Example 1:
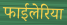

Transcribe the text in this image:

फाईलेरिया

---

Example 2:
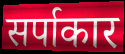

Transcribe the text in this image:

सर्पाकार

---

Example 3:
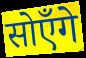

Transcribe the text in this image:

सोएँगे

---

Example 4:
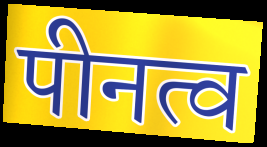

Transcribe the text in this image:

पीनत्व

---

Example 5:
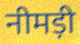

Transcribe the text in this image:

नीमड़ी